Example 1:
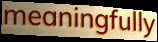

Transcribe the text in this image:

meaningfully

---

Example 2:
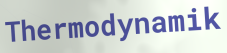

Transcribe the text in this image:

Thermodynamik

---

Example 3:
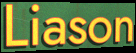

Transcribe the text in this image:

Liason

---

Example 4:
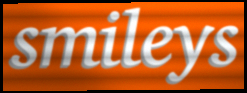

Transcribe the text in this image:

smileys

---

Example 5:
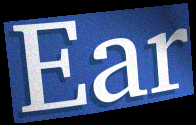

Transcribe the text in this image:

Ear